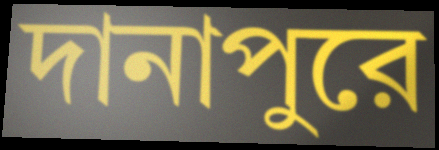
দানাপুরে